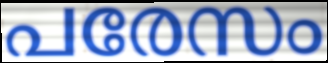
പരേസം